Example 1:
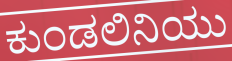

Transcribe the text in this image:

ಕುಂಡಲಿನಿಯು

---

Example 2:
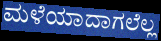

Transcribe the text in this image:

ಮಳೆಯಾದಾಗಲೆಲ್ಲ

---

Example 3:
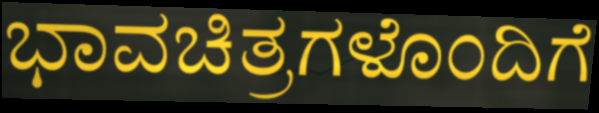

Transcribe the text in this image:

ಭಾವಚಿತ್ರಗಳೊಂದಿಗೆ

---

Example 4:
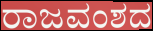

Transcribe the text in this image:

ರಾಜವಂಶದ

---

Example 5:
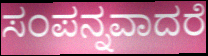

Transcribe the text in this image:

ಸಂಪನ್ನವಾದರೆ